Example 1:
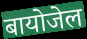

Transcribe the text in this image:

बायोजेल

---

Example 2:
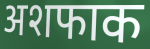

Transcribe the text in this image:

अशफाक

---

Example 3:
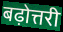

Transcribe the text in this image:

बढ़ोत्तरी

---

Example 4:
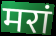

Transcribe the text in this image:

मरां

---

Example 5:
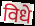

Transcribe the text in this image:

विधे